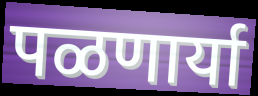
पळणार्या